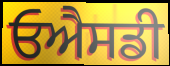
ਓਐਸਡੀ